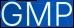
GMP